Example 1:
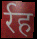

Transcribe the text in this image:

र्रह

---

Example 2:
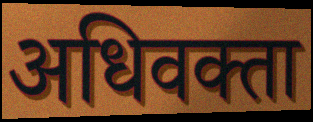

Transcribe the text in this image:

अधिवक्ता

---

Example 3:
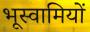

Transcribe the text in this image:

भूस्वामियों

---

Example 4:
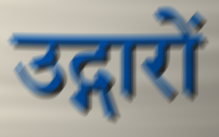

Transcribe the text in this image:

उद्गारों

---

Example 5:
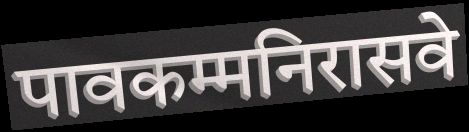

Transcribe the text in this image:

पावकम्मनिरासवे